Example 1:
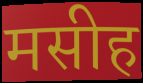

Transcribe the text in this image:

मसीह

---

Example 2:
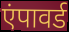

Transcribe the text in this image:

एंपावर्ड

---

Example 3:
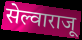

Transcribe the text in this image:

सेल्वाराजू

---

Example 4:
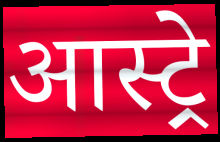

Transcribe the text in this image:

आस्ट्रे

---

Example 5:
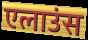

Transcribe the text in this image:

एलाउंस